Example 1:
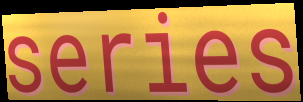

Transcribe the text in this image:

series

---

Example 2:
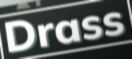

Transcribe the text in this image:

Drass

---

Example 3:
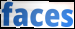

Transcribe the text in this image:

faces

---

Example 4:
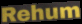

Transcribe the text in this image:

Rehum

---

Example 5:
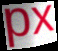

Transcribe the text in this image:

px